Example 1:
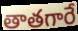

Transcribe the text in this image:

తాతగారే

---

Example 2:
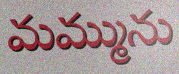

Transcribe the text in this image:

మమ్మును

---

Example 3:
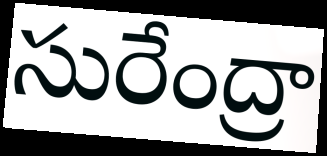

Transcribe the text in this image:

సురేంద్రా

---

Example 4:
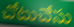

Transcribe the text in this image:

చోటుచేసు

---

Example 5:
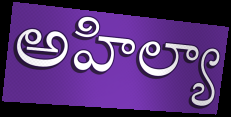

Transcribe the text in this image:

అహిల్యా